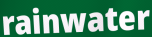
rainwater